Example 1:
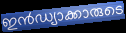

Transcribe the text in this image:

ഇൻഡ്യാക്കാരുടെ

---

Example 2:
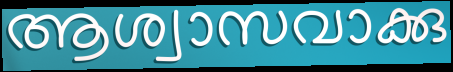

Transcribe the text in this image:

ആശ്വാസവാക്കു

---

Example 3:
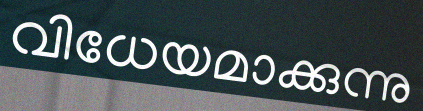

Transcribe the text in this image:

വിധേയമാക്കുന്നു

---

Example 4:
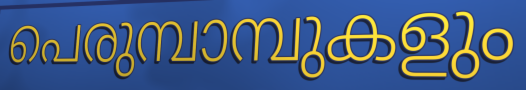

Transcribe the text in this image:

പെരുമ്പാമ്പുകളും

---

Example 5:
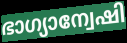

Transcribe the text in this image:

ഭാഗ്യാന്വേഷി